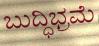
ಬುದ್ಧಿಭ್ರಮೆ